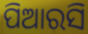
ପିଆରସି